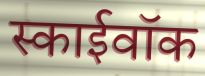
स्काईवॉक